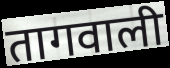
तागवाली